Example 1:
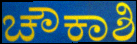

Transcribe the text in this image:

ಚೌಕಾಶಿ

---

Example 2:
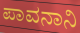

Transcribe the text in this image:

ಪಾವನಾನಿ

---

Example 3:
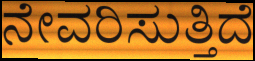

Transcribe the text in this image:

ನೇವರಿಸುತ್ತಿದೆ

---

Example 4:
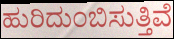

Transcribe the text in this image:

ಹುರಿದುಂಬಿಸುತ್ತಿವೆ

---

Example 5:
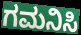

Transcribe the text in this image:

ಗಮನಿಸಿ